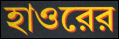
হাওরের